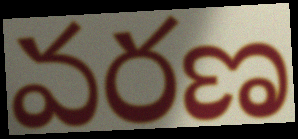
వరణ